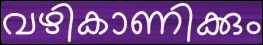
വഴികാണിക്കും